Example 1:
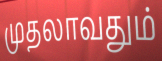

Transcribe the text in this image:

முதலாவதும்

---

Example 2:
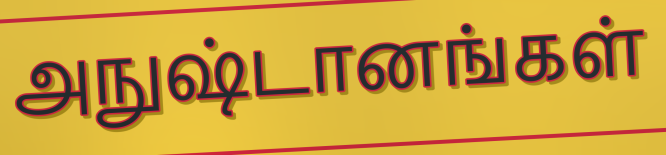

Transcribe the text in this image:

அநுஷ்டானங்கள்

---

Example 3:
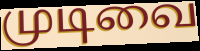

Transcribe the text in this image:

முடிவை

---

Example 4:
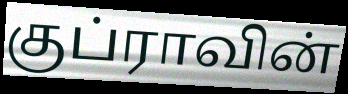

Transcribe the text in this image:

குப்ராவின்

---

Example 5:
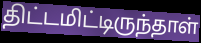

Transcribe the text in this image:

திட்டமிட்டிருந்தாள்